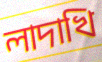
লাদাখি